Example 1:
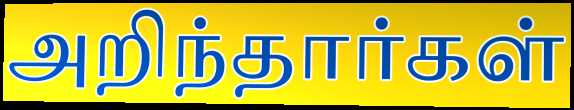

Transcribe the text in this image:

அறிந்தார்கள்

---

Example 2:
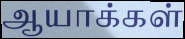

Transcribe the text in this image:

ஆயாக்கள்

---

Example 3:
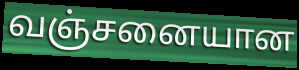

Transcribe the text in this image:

வஞ்சனையான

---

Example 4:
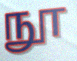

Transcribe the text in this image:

நூ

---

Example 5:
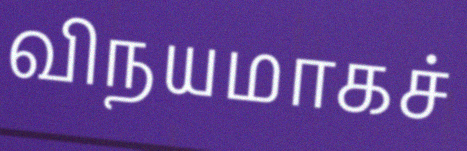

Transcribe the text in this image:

விநயமாகச்